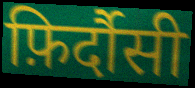
फ़िर्दौसी